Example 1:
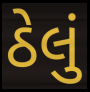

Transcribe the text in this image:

ઠેલું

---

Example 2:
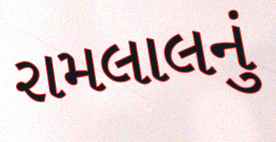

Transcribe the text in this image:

રામલાલનું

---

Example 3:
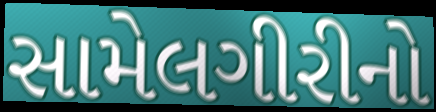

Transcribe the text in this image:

સામેલગીરીનો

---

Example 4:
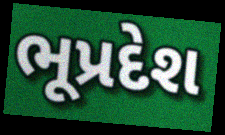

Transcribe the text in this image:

ભૂપ્રદેશ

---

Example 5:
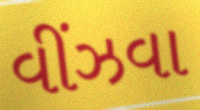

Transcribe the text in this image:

વીંઝવા